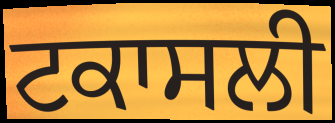
ਟਕਾਸਲੀ